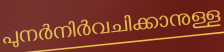
പുനർനിർവചിക്കാനുള്ള